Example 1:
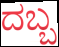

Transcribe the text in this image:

ದಬ್ಬ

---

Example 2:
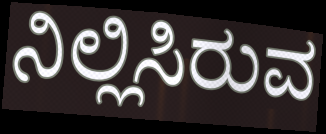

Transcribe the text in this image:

ನಿಲ್ಲಿಸಿರುವ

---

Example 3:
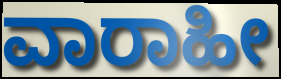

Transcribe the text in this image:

ವಾರಾಹೀ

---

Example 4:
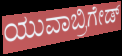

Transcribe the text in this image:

ಯುವಾಬ್ರಿಗೇಡ್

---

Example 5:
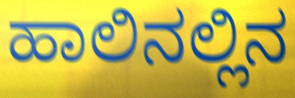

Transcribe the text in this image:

ಹಾಲಿನಲ್ಲಿನ